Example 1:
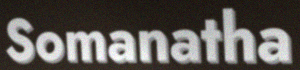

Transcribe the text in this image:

Somanatha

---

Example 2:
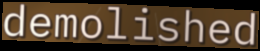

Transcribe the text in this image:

demolished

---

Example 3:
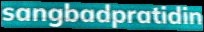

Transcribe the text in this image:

sangbadpratidin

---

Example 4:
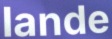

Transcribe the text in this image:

lande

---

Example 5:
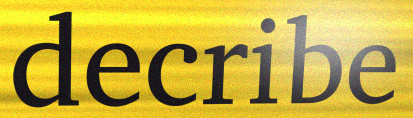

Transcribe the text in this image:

decribe